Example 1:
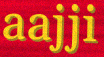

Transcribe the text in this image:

aajji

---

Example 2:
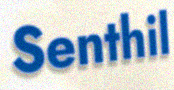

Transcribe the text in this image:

Senthil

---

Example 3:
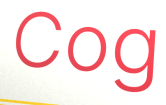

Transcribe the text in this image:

Cog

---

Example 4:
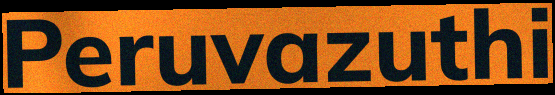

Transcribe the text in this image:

Peruvazuthi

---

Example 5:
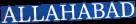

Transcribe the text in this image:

ALLAHABAD